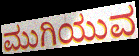
ಮುಗಿಯುವ